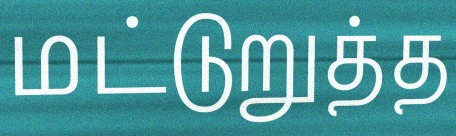
மட்டுறுத்த